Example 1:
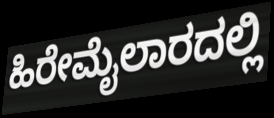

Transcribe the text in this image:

ಹಿರೇಮೈಲಾರದಲ್ಲಿ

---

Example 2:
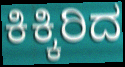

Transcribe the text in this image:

ಕಿಕ್ಕಿರಿದ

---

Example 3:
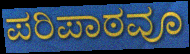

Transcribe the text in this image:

ಪರಿಪಾಠವೂ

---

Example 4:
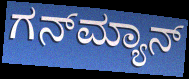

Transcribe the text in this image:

ಗನ್‌ಮ್ಯಾನ್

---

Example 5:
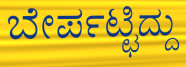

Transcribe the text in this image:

ಬೇರ್ಪಟ್ಟಿದ್ದು